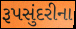
રૂપસુંદરીના